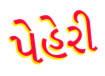
પેહેરી